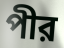
পীর